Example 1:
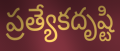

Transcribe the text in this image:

ప్రత్యేకదృష్టి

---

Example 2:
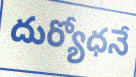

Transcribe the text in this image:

దుర్యోధనే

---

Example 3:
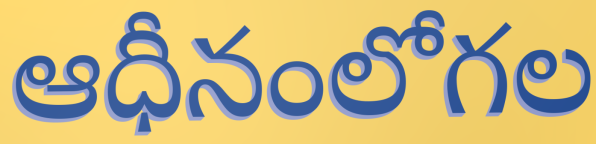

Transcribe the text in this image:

ఆధీనంలోగల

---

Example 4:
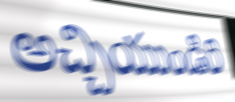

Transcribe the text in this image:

అచ్చియుండిరి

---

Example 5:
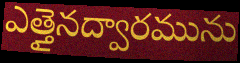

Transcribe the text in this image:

ఎత్తైనద్వారమును